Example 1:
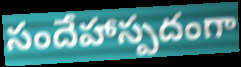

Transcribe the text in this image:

సందేహాస్పదంగా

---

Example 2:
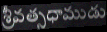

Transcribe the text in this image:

శ్రీవత్సధాముడు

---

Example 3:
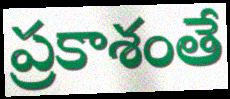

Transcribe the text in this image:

ప్రకాశంతే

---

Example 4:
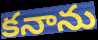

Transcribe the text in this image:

కనాను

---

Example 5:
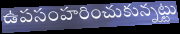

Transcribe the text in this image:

ఉపసంహరించుకున్నట్టు